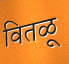
वितळू